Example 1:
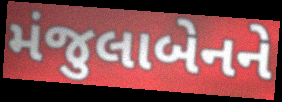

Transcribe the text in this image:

મંજુલાબેનને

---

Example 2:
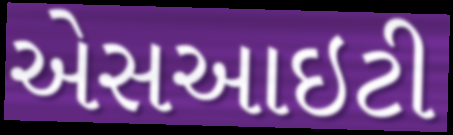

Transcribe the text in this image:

એસઆઇટી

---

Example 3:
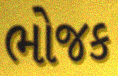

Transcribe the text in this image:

ભોજક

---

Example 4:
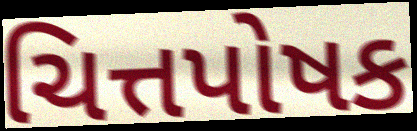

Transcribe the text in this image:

ચિત્તપોષક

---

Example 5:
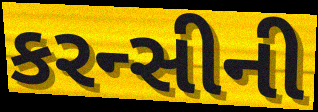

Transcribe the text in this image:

કરન્સીની